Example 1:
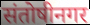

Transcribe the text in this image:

संतोषीनगर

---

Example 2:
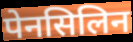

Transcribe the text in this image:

पेनसिलिन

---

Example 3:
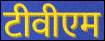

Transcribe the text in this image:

टीवीएम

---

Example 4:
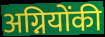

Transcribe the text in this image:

अग्नियोंकी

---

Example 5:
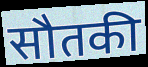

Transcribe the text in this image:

सौतकी